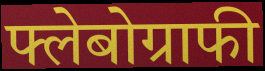
फ्लेबोग्राफी